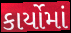
કાર્યોમાં